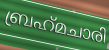
ബ്രഹ്‌മചാരി